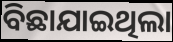
ବିଛାଯାଇଥିଲା